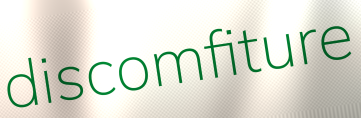
discomfiture